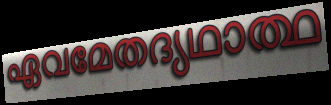
ഏവമേതദ്യഥാത്ഥ